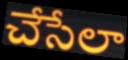
చేసేలా